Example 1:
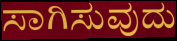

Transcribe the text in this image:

ಸಾಗಿಸುವುದು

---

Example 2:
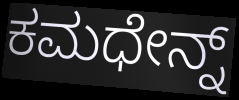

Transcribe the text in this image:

ಕಮಧೇನ್ನ್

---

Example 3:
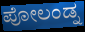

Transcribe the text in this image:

ಪೋಲಂಡ್ನ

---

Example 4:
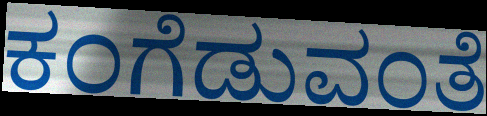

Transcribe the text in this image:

ಕಂಗೆಡುವಂತೆ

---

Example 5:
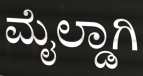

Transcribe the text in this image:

ಮೈಲ್ಡಾಗಿ